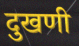
दुखणी